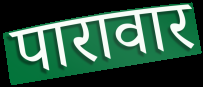
पारावार